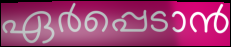
ഏർപ്പെടാൻ